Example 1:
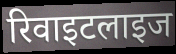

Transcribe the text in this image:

रिवाइटलाइज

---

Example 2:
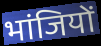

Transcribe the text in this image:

भांजियों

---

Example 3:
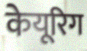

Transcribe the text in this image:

केयूरिग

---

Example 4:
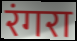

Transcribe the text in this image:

रंगरा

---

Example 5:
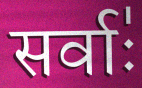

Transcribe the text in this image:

सर्वाः॑